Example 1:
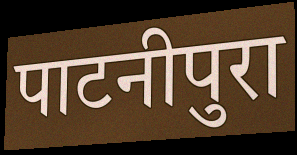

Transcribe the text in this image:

पाटनीपुरा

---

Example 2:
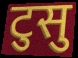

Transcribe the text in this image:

टुसु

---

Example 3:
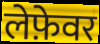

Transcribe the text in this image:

लेफ़ेवर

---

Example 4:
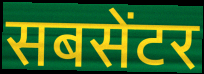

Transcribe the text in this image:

सबसेंटर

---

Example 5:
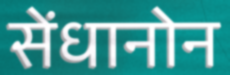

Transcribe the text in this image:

सेंधानोन